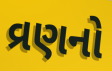
વ્રણનો